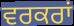
ਵਰਕਰਾਂ